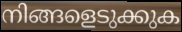
നിങ്ങളെടുക്കുക